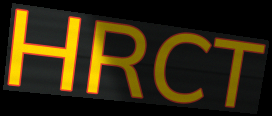
HRCT